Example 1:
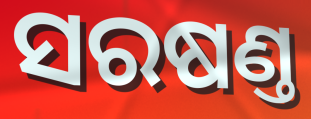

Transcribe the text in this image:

ସରଷଣ୍ତ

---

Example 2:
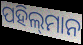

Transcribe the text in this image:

ପହିଲ୍‌ମାନ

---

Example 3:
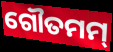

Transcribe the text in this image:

ଗୌତମମ୍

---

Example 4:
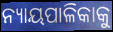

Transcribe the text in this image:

ନ୍ୟାୟପାଳିକାକୁ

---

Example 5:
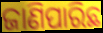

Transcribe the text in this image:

ଜାଣିପାରିଛ